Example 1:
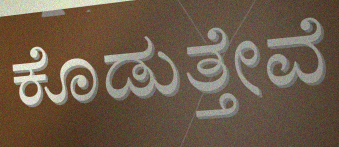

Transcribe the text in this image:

ಕೊಡುತ್ತೇವೆ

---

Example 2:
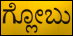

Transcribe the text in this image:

ಗ್ಲೋಬು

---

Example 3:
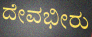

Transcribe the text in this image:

ದೇವಭೀರು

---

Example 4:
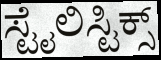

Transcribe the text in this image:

ಸ್ಟೈಲಿಸ್ಟಿಕ್ಸ್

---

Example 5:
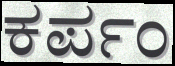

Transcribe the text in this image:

ಕರ್ಪಂ